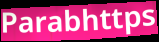
Parabhttps